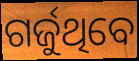
ଗର୍ଜୁଥିବେ